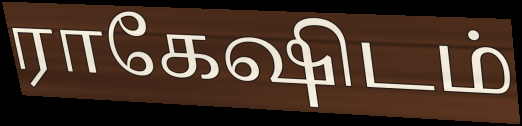
ராகேஷிடம்